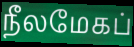
நீலமேகப்